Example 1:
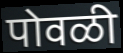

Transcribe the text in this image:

पोवळी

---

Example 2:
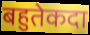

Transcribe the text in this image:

बहुतेकदा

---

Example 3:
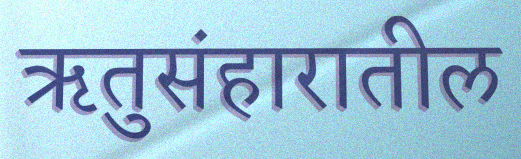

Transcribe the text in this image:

ऋतुसंहारातील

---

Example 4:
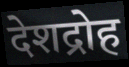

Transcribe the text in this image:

देशद्रोह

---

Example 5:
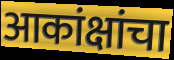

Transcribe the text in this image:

आकांक्षांचा